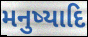
મનુષ્યાદિ